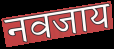
नवजाय